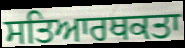
ਸਤਿਆਰਥਕਤਾ